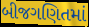
બીજગણિતમાં